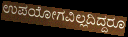
ಉಪಯೋಗವಿಲ್ಲದಿದ್ದರೂ